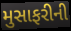
મુસાફરીની